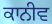
ਕਾਨੀਵ